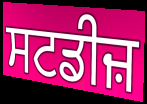
ਸਟਡੀਜ਼